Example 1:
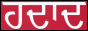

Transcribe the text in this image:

ਹਦਾਦ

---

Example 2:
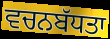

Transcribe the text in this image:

ਵਚਨਬੱਧਤਾ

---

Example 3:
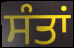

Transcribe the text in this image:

ਸੰਤਾਂ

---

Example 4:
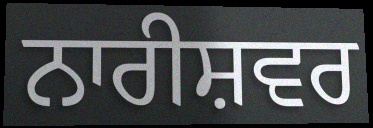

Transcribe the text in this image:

ਨਾਰੀਸ਼ਵਰ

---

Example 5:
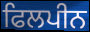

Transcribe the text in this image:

ਫਿਲਪੀਨ